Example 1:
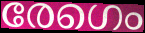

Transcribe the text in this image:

രേഗെം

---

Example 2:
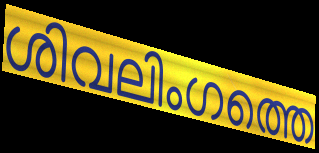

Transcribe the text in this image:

ശിവലിംഗത്തെ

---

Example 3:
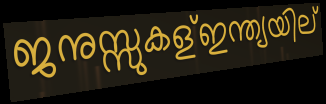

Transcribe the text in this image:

ജനുസ്സുകള്ഇന്ത്യയില്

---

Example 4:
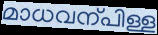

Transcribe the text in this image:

മാധവന്പിള്ള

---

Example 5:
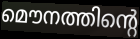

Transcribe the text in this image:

മൌനത്തിന്റെ